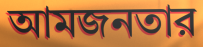
আমজনতার